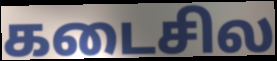
கடைசில